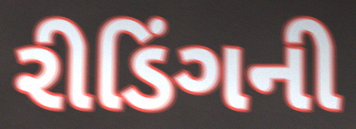
રીડિંગની